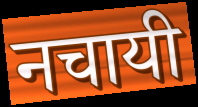
नचायी